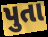
પુતા